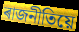
ৰাজনীতিয়ে